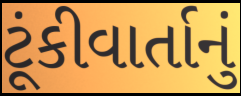
ટૂંકીવાર્તાનું